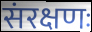
संरक्षणः